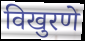
विखुरणे